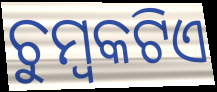
ଚୁମ୍ବକଟିଏ